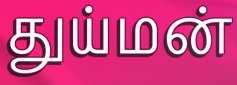
துய்மன்